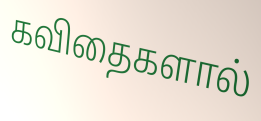
கவிதைகளால்